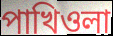
পাখিওলা